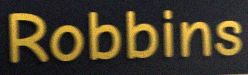
Robbins